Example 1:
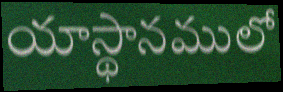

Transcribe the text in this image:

యాస్థానములో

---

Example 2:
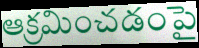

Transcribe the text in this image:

ఆక్రమించడంపై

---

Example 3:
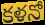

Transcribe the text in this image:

కళనో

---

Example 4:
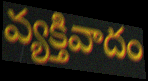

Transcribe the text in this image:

వ్యక్తివాదం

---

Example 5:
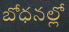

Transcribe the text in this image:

బోధనల్లో